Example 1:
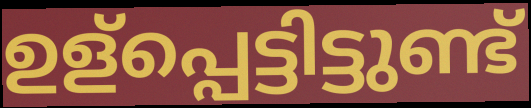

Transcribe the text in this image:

ഉള്പ്പെട്ടിട്ടുണ്ട്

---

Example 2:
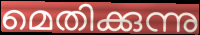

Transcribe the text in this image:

മെതിക്കുന്നു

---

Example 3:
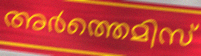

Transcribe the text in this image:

അർത്തെമിസ്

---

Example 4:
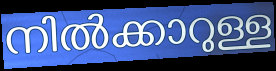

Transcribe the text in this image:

നിൽക്കാറുള്ള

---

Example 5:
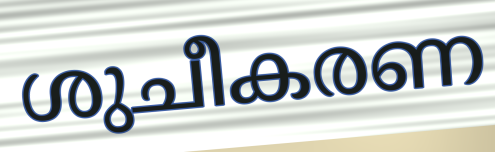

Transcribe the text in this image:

ശുചീകരണ